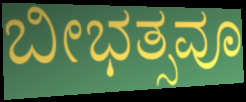
ಬೀಭತ್ಸವೂ